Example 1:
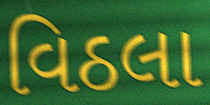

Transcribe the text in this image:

વિઠલા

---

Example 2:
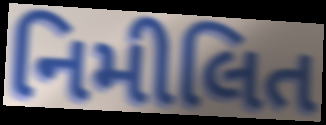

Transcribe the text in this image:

નિમીલિત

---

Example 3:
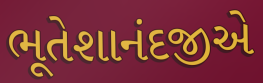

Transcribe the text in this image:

ભૂતેશાનંદજીએ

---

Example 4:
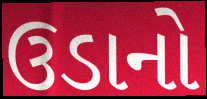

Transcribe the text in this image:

ઉડાનો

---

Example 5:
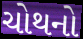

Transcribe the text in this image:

ચોથનો